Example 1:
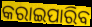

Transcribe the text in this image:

କରାଇପାରିବ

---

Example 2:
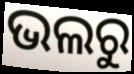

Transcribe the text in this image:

ଭଲରୁ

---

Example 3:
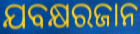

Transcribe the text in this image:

ଯବକ୍ଷରଜାନ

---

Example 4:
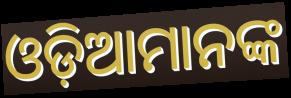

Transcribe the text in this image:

ଓଡ଼ିଆମାନଙ୍କ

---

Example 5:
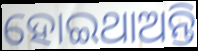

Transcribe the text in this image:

ହୋଇଥାଅନ୍ତି